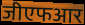
जीएफआर